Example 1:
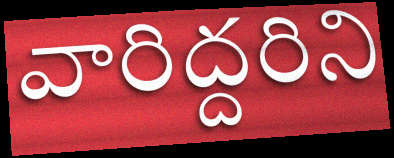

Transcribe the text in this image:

వారిద్దరిని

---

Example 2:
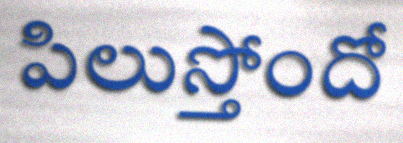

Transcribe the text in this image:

పిలుస్తోందో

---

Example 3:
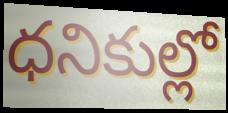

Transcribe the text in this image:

ధనికుల్లో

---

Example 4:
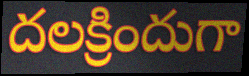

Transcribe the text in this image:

దలక్రిందుగా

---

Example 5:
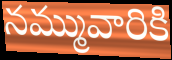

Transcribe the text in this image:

నమ్మువారికి